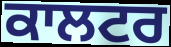
ਕਾਲਟਰ